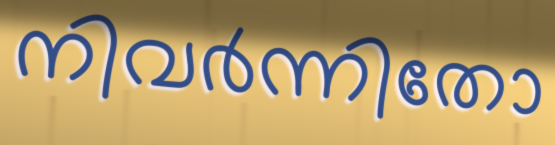
നിവർന്നിതോ